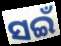
ସଇଁ